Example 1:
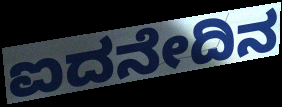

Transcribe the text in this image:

ಐದನೇದಿನ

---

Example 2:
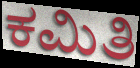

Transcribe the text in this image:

ಕಮಿತಿ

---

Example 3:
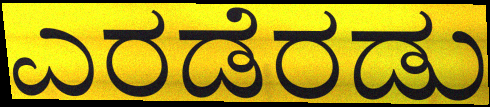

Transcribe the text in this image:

ಎರಡೆರಡು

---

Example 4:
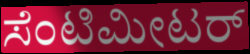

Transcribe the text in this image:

ಸೆಂಟಿಮೀಟರ್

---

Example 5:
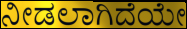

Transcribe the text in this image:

ನೀಡಲಾಗಿದೆಯೇ